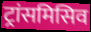
ट्रांसमिसिव